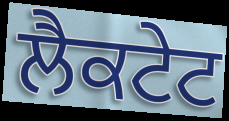
ਲੈਕਟੇਟ